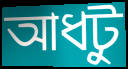
আধটু